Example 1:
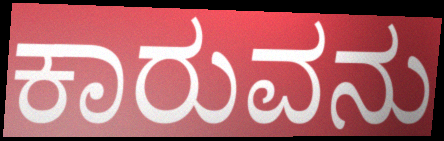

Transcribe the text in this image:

ಕಾರುವನು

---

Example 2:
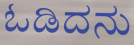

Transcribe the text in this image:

ಓಡಿದನು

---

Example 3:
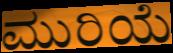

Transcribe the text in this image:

ಮುರಿಯೆ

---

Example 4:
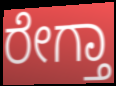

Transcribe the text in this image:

ರೇಗ್ತಾ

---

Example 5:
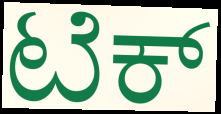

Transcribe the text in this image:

ಟೆಕ್